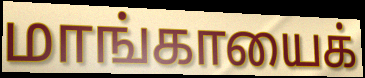
மாங்காயைக்